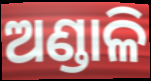
ଅଣ୍ଡାଳି